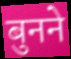
बुनने